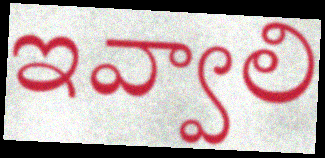
ఇవ్వాలి